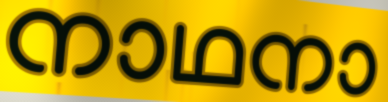
നാഥനാ